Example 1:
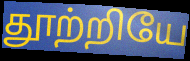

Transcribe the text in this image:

தூற்றியே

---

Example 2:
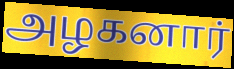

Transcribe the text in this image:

அழகனார்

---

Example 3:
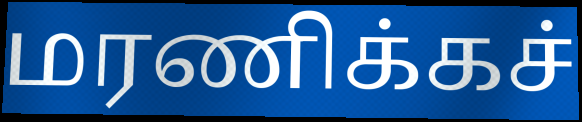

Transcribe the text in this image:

மரணிக்கச்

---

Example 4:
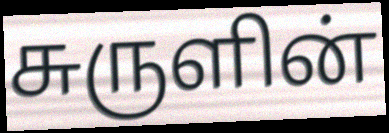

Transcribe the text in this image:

சுருளின்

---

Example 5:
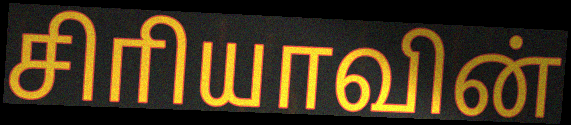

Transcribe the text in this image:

சிரியாவின்